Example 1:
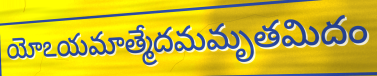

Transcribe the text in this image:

యోఽయమాత్మేదమమృతమిదం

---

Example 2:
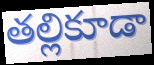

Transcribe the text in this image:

తల్లికూడా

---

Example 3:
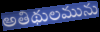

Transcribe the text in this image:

అతిథులమును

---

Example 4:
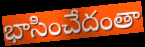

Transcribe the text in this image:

భాసించేదంతా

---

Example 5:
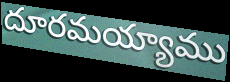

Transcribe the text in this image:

దూరమయ్యాము